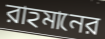
রাহমানের